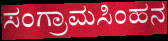
ಸಂಗ್ರಾಮಸಿಂಹನ